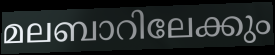
മലബാറിലേക്കും